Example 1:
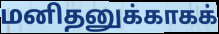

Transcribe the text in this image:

மனிதனுக்காகக்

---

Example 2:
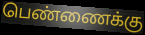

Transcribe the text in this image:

பெண்ணைக்கு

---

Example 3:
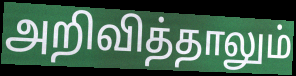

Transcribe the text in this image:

அறிவித்தாலும்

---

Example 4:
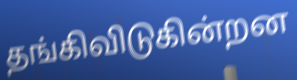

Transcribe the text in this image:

தங்கிவிடுகின்றன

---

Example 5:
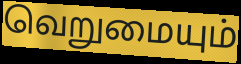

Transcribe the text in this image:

வெறுமையும்